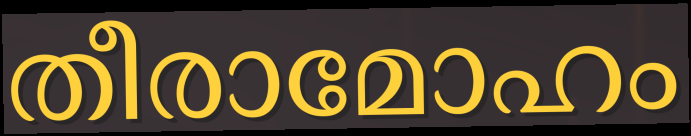
തീരാമോഹം